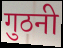
गुठनी